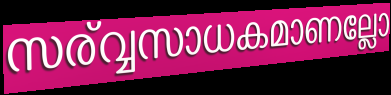
സര്വ്വസാധകമാണല്ലോ